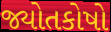
જ્યોતકોષો